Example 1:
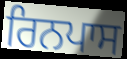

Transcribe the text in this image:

ਰਿਨਪਾਸ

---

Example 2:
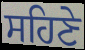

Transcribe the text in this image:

ਸਹਿਣੇ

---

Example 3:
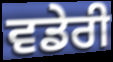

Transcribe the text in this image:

ਵਡੇਰੀ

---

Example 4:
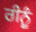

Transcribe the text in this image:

ਰੀਨੂੰ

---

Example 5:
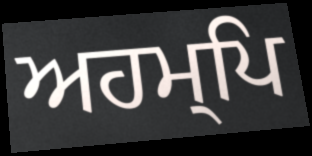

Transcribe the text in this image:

ਅਹਮ੍ਪਿ